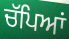
ਚੱਪਿਆਂ